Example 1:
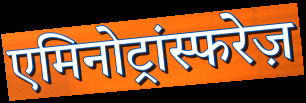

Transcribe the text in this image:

एमिनोट्रांस्फरेज़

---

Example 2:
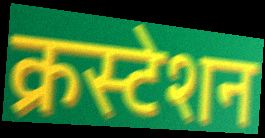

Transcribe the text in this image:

क्रस्टेशन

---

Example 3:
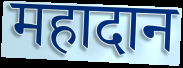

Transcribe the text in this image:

महादान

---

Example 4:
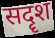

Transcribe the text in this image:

सदॄश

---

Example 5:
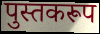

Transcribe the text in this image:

पुस्तकरूप